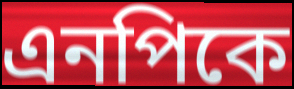
এনপিকে